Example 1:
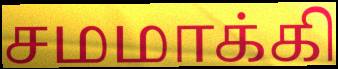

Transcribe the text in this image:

சமமாக்கி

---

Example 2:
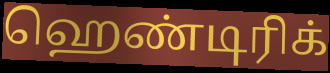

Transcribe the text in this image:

ஹெண்டிரிக்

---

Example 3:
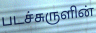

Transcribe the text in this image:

படச்சுருளின்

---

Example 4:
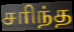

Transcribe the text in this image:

சரிந்த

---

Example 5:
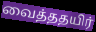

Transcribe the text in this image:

வைத்ததயிர்